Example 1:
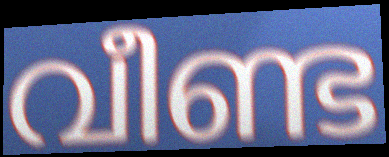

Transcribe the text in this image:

വീണ്ട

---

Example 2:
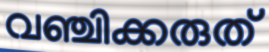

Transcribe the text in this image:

വഞ്ചിക്കരുത്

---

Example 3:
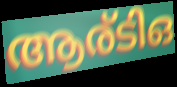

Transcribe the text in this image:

ആര്ടിഒ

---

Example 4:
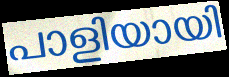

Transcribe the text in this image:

പാളിയായി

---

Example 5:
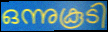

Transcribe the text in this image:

ഒന്നുകൂടി